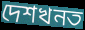
দেশখনত